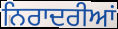
ਨਿਰਾਦਰੀਆਂ